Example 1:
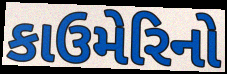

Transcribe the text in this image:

કાઉમેરિનો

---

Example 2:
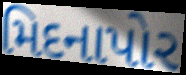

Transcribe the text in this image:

મિદનાપોર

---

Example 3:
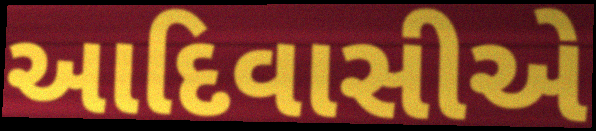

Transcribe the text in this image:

આદિવાસીએ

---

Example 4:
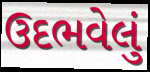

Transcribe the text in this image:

ઉદભવેલું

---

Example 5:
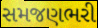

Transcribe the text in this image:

સમજણભરી